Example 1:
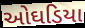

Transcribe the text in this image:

ઓઘડિયા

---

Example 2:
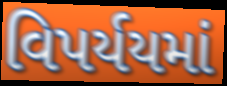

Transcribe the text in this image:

વિપર્યયમાં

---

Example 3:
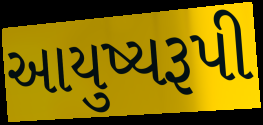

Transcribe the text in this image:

આયુષ્યરૂપી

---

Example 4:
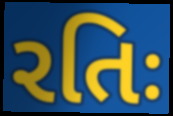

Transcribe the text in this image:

રતિઃ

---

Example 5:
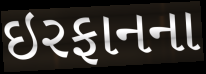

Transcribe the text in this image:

ઇરફાનના